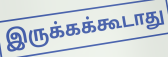
இருக்கக்கூடாது